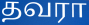
தவரா